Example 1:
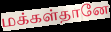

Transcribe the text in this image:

மக்கள்தானே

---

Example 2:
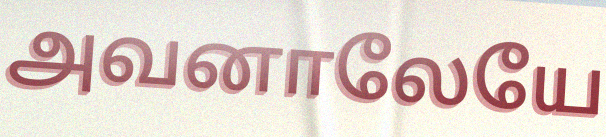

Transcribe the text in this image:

அவனாலேயே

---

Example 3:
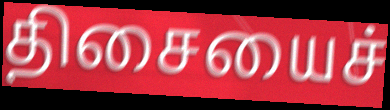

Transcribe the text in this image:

திசையைச்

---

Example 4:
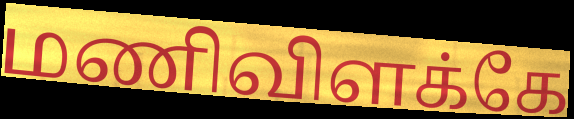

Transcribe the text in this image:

மணிவிளக்கே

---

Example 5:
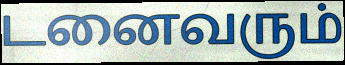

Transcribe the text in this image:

டனைவரும்